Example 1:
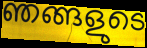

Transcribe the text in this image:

ഞങ്ങളുടെ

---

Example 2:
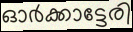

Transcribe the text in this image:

ഓർക്കാട്ടേരി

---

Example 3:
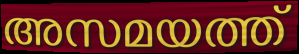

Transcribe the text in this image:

അസമയത്ത്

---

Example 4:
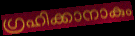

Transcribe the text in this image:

ഗ്രഹിക്കാനാകും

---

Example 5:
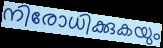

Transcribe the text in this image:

നിരോധിക്കുകയും